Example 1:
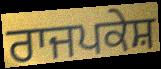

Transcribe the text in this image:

ਰਾਜਪਕੇਸ਼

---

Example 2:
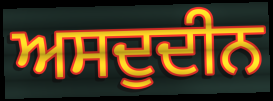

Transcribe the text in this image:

ਅਸਦੁਦੀਨ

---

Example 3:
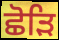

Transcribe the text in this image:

ਛੋੜਿ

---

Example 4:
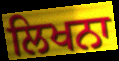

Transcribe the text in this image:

ਲਿਖਨਾ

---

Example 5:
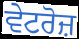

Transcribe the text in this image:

ਵੇਟਰੋਜ਼